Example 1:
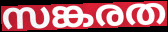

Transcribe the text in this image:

സങ്കരത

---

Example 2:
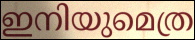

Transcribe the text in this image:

ഇനിയുമെത്ര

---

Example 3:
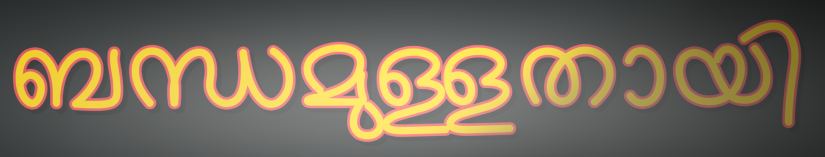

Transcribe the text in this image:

ബന്ധമുള്ളതായി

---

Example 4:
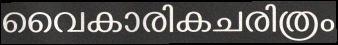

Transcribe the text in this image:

വൈകാരികചരിത്രം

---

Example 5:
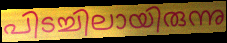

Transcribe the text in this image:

പിടച്ചിലായിരുന്നു